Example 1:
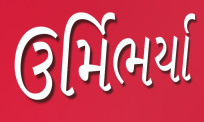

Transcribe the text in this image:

ઉર્મિભર્યા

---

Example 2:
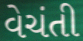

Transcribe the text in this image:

વેચંતી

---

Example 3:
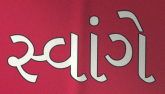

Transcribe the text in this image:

સ્વાંગે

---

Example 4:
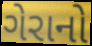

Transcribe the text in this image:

ગેરાનો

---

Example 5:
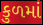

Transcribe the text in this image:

કુળમાં